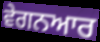
ਵੇਗਨਆਰ